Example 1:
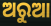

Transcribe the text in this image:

ଅରୁଆ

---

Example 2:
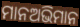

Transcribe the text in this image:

ମାନଅଭିମାନ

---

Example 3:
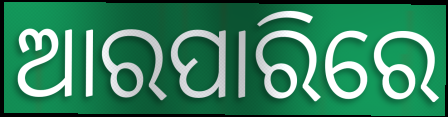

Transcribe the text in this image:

ଆରପାରିରେ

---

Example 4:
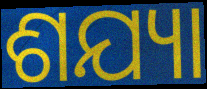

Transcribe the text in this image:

ଶଯ୍ୟା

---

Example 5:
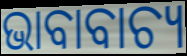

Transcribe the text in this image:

ଭାବାବାଚ୍ୟ